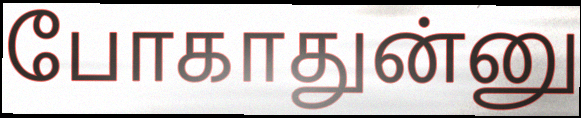
போகாதுன்னு